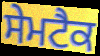
ਸੇਮਟੈਕ